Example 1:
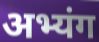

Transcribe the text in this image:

अभ्यंग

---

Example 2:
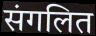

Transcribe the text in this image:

संगलित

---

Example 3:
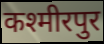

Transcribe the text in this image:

कश्मीरपुर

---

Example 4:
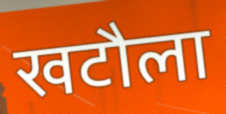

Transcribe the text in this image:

खटौला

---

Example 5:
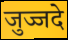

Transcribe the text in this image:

जुज्जदे